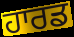
ਹਾਰਡ